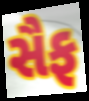
સૈફ